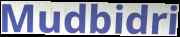
Mudbidri